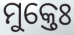
ମୁକ୍ତେଃ